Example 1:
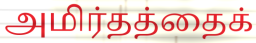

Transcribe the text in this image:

அமிர்தத்தைக்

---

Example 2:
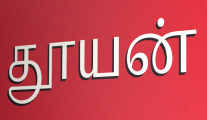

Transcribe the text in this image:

தூயன்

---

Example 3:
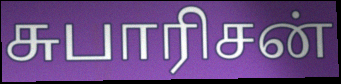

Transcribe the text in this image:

சுபாரிசன்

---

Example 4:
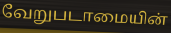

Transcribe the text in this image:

வேறுபடாமையின்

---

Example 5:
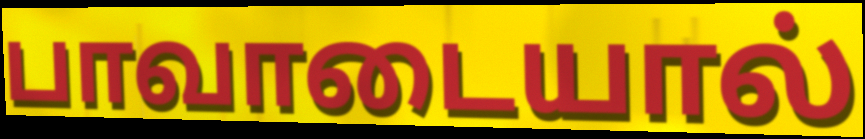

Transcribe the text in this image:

பாவாடையால்